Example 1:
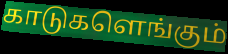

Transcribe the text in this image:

காடுகளெங்கும்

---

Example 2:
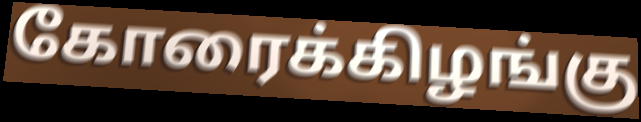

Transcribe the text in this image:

கோரைக்கிழங்கு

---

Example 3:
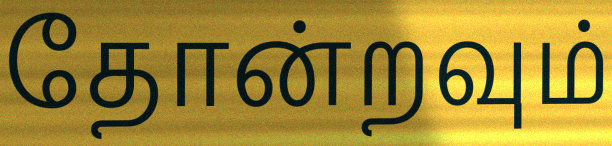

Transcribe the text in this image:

தோன்றவும்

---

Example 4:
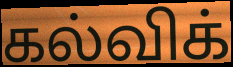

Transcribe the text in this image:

கல்விக்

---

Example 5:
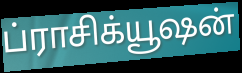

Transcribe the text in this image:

ப்ராசிக்யூஷன்